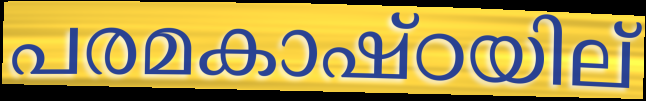
പരമകാഷ്ഠയില്